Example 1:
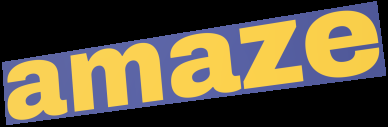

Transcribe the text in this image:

amaze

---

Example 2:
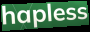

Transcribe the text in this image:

hapless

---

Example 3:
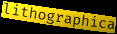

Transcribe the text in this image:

lithographica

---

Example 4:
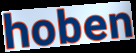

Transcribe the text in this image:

hoben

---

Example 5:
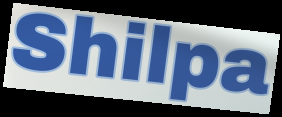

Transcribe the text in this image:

Shilpa